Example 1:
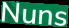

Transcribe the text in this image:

Nuns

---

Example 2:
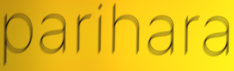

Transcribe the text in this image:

parihara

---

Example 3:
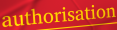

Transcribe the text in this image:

authorisation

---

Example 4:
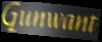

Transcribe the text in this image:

Gunwant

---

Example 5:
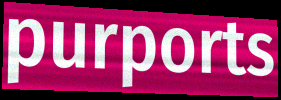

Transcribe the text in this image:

purports